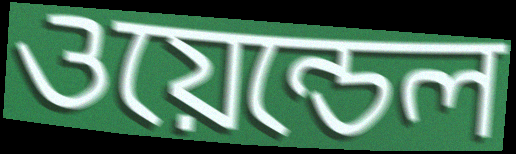
ওয়েন্ডেল